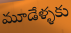
మూడేళ్ళకు